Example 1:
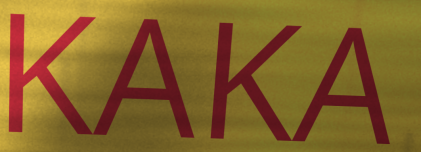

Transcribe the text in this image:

KAKA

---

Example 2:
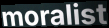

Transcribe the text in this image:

moralist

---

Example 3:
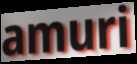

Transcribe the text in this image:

amuri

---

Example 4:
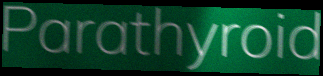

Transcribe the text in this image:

Parathyroid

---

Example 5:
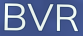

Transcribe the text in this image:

BVR